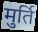
मुर्ति